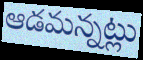
ఆడమన్నట్లు